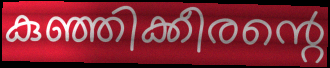
കുഞ്ഞിക്കീരന്റെ